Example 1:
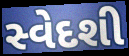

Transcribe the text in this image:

સ્વેદશી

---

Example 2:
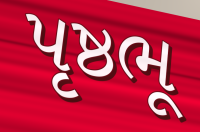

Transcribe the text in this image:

પૃષ્ઠભૂ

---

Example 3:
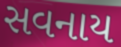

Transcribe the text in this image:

સવનાય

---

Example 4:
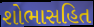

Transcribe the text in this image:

શોભાસહિત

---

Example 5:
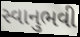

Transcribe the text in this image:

સ્વાનુભવી